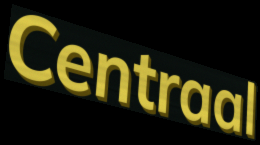
Centraal